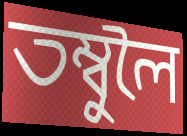
তম্বুলৈ